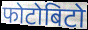
फोटोबिटो